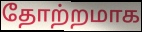
தோற்றமாக